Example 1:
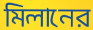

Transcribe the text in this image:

মিলানের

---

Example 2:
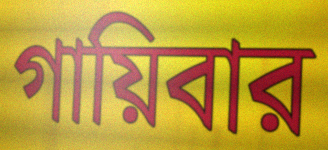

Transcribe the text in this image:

গায়িবার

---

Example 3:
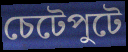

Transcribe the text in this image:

চেটেপুটে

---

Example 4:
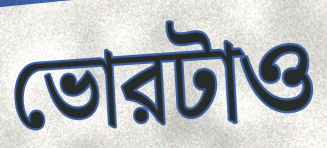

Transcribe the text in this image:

ভোরটাও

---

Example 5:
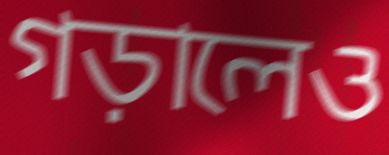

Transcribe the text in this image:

গড়ালেও